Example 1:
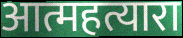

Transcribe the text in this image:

आत्महत्यारा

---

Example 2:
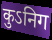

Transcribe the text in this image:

कुऽनिग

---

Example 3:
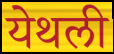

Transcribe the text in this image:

येथली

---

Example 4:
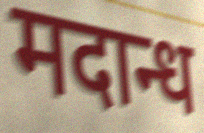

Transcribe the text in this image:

मदान्ध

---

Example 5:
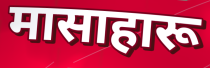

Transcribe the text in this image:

मासाहारू